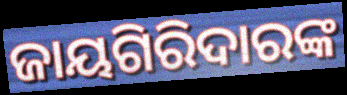
ଜାୟଗିରିଦାରଙ୍କ